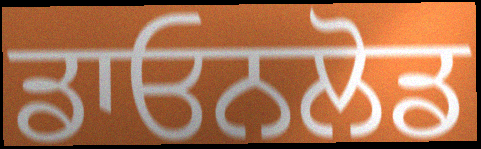
ਡਾਓਨਲੋਡ